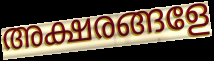
അക്ഷരങ്ങളേ